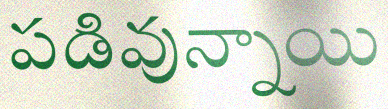
పడివున్నాయి